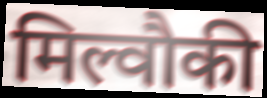
मिल्वौकी